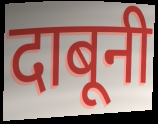
दाबूनी